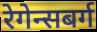
रेगेन्सबर्ग